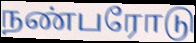
நண்பரோடு